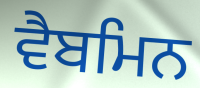
ਵੈਬਮਿਨ